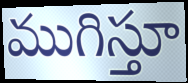
ముగిస్తూ